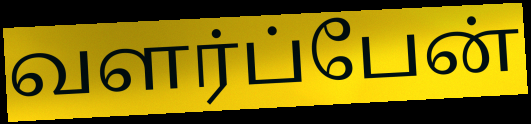
வளர்ப்பேன்